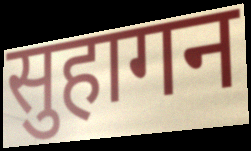
सुहागन